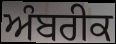
ਅੰਬਰੀਕ